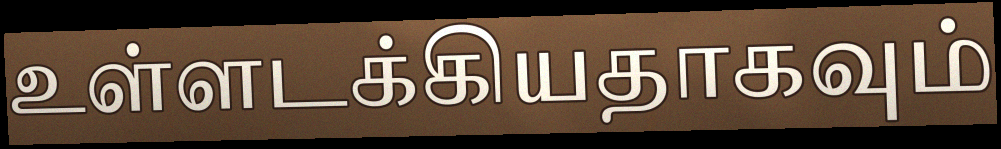
உள்ளடக்கியதாகவும்